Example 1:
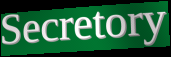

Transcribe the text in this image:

Secretory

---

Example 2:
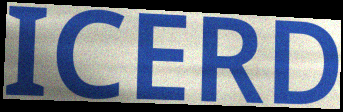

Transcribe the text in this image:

ICERD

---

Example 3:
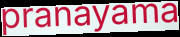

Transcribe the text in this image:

pranayama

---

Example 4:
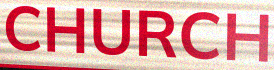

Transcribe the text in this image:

CHURCH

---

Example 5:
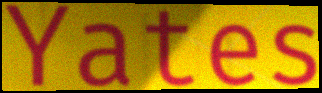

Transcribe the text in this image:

Yates